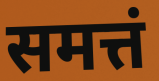
समत्तं